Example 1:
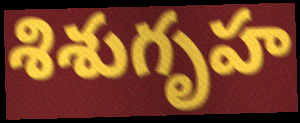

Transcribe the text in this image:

శిశుగృహ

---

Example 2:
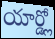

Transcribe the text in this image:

యార్డ్లో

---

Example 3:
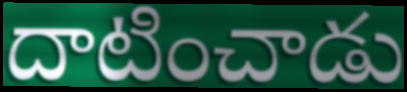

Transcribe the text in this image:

దాటించాడు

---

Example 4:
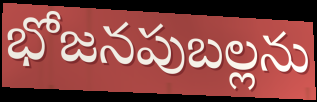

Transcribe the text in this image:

భోజనపుబల్లను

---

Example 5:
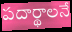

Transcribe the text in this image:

పదార్థాలనే